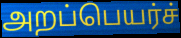
அறப்பெயர்ச்